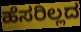
ಹೆಸರಿಲ್ಲದ